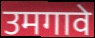
उमगावे